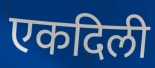
एकदिली